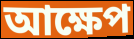
আক্ষেপ